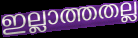
ഇല്ലാത്തതല്ല